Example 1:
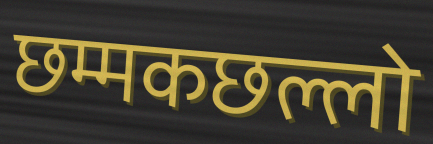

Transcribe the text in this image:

छम्मकछल्लो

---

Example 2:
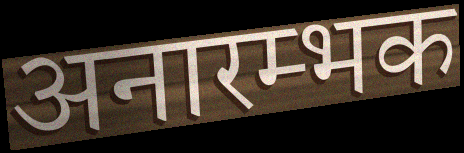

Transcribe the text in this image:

अनारम्भक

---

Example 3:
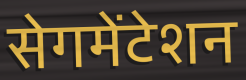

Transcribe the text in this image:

सेगमेंटेशन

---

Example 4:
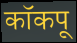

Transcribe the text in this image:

कॉकपू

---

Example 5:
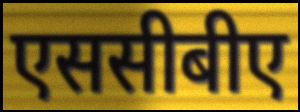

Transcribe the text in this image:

एससीबीए